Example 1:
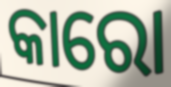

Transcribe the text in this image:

କାରୋ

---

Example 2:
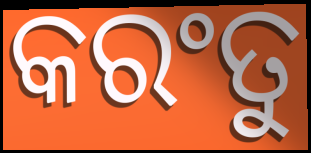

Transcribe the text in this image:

କରଂତୁ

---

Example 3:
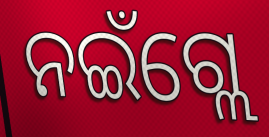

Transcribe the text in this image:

ନଇଁଗ୍ଲେ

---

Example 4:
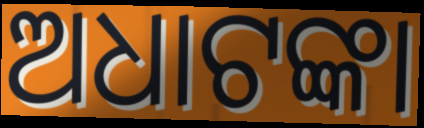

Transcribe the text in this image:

ଅଧାଟଙ୍କା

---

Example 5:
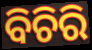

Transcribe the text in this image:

ବିଚିରି